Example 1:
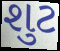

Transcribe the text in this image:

શુટ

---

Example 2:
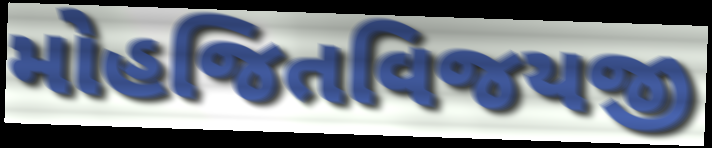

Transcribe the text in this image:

મોહજિતવિજયજી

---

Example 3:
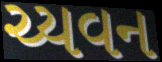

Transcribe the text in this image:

ચ્યવન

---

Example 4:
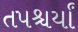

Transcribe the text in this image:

તપશ્ચર્યાં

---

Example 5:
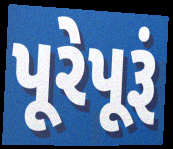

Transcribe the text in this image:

પૂરેપૂરૂં